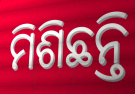
ମିଶିଛନ୍ତି